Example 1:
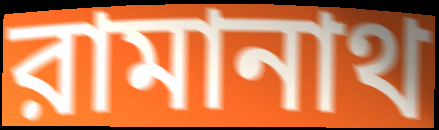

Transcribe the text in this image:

রামানাথ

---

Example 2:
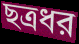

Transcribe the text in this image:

ছত্রধর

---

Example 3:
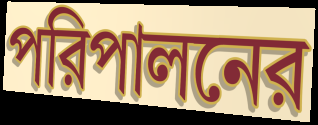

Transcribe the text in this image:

পরিপালনের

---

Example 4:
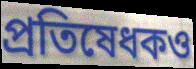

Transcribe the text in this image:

প্রতিষেধকও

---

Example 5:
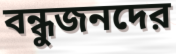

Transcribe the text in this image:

বন্ধুজনদের